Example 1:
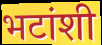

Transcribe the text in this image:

भटांशी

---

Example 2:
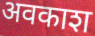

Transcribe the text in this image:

अवकाश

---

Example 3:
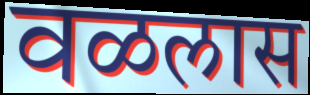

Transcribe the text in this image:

वळलास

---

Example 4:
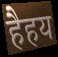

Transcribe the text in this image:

हैहय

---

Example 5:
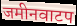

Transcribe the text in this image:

जमीनवाटप